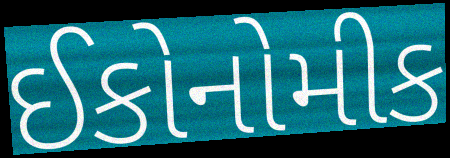
ઈકોનોમીક